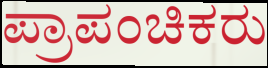
ಪ್ರಾಪಂಚಿಕರು